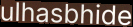
ulhasbhide